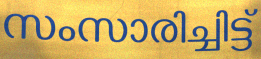
സംസാരിച്ചിട്ട്